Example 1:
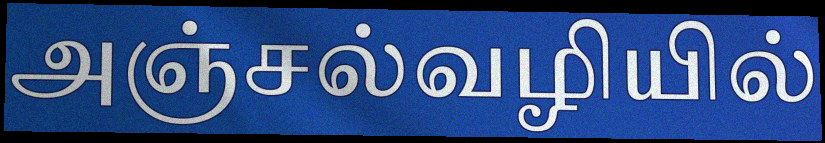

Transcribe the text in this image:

அஞ்சல்வழியில்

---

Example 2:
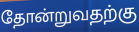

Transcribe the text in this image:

தோன்றுவதற்கு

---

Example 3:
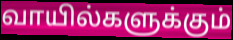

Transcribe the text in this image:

வாயில்களுக்கும்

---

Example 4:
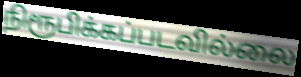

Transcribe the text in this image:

நிரூபிக்கப்படவில்லை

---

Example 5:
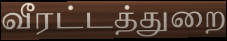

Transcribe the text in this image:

வீரட்டத்துறை